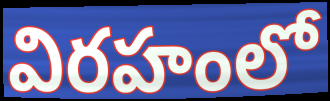
విరహంలో